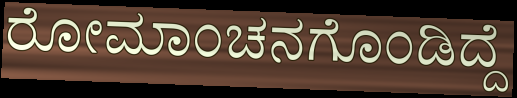
ರೋಮಾಂಚನಗೊಂಡಿದ್ದೆ